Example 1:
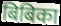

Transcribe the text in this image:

बिबिका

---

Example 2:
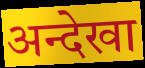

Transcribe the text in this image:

अन्देखा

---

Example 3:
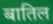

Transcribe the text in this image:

बातिल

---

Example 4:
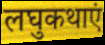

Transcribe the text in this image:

लघुकथाएं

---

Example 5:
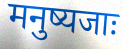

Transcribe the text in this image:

मनुष्यजाः